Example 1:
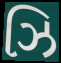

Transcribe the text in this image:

ઝિ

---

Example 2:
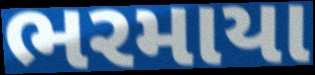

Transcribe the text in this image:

ભરમાયા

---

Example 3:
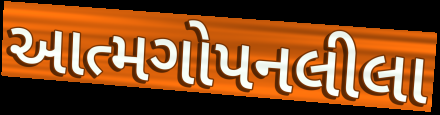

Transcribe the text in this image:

આત્મગોપનલીલા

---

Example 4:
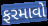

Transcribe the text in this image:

ફરમાવો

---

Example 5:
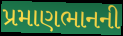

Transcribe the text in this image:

પ્રમાણભાનની